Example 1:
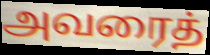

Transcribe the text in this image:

அவரைத்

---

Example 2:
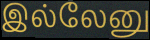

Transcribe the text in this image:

இல்லேனு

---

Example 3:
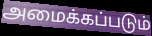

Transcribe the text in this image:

அமைக்கப்படும்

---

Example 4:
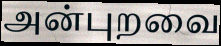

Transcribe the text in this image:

அன்புறவை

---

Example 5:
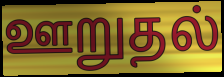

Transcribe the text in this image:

ஊறுதல்